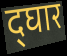
द्घार